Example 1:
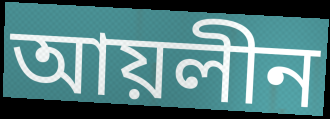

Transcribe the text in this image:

আয়লীন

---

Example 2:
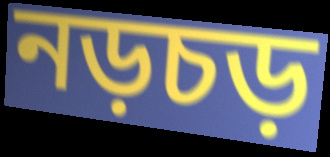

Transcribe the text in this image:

নড়চড়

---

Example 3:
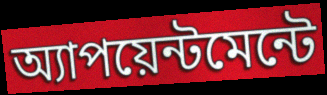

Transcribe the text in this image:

অ্যাপয়েন্টমেন্টে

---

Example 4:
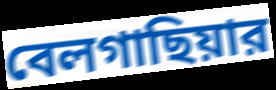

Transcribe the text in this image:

বেলগাছিয়ার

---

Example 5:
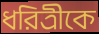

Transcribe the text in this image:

ধরিত্রীকে